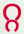
റ്റ